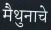
मैथुनाचे